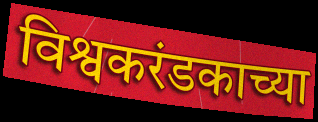
विश्वकरंडकाच्या